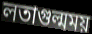
লতাগুল্মময়